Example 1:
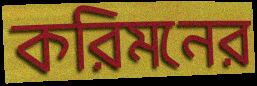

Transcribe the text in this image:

করিমনের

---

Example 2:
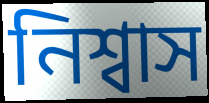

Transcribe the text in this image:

নিশ্বাস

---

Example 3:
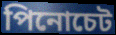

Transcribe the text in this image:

পিনোচেট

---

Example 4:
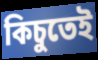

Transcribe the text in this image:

কিচুতেই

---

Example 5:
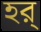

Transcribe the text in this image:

হর্